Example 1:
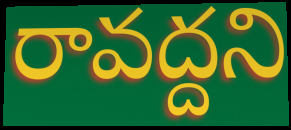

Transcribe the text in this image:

రావద్దని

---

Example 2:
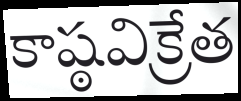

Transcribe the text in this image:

కాష్ఠవిక్రేత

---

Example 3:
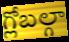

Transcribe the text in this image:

గ్లోబల్గా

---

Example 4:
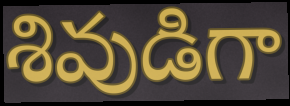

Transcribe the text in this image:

శివుడిగా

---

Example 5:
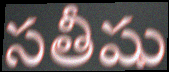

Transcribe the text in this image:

సతీషు